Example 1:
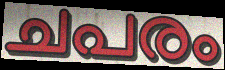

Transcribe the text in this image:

ചപരം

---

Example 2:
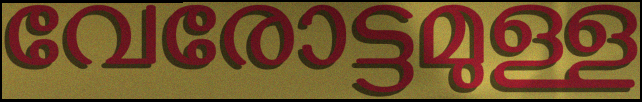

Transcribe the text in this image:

വേരോട്ടമുള്ള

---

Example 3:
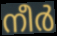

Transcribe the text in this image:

നീർ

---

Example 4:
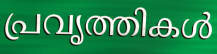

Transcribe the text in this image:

പ്രവൃത്തികൾ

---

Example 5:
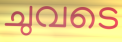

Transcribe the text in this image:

ചുവടെ